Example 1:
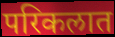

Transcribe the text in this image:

परिकलात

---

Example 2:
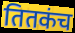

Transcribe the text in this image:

तितकंच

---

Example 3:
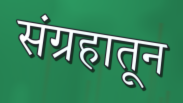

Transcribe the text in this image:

संग्रहातून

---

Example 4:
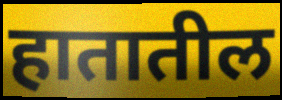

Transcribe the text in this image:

हातातील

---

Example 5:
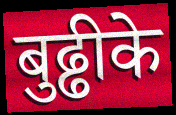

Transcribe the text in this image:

बुढ्ढीके